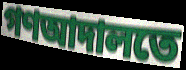
গণআদালতে